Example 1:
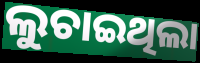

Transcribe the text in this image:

ଲୁଚାଇଥିଲା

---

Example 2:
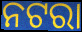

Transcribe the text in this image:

ନଟରା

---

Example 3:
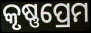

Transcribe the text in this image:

କୃଷ୍ଣପ୍ରେମ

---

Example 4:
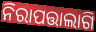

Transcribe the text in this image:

ନିରାପତ୍ତାଲାଗି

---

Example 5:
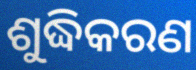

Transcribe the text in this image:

ଶୁଦ୍ଧିକରଣ